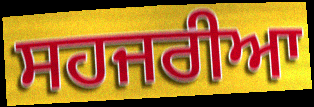
ਸਹਜਰੀਆ